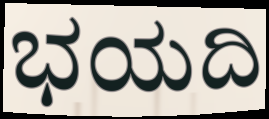
ಭಯದಿ